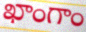
ఖాంగాం